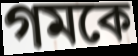
গমকে